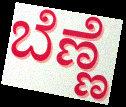
ಬೆಣ್ಣೆ